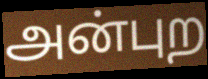
அன்புற